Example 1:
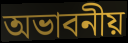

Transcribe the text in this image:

অভাবনীয়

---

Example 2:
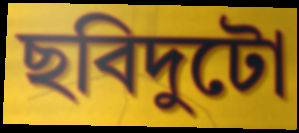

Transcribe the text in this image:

ছবিদুটো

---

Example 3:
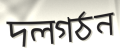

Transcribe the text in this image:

দলগঠন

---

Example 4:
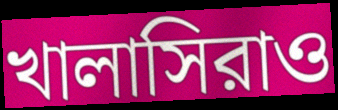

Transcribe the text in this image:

খালাসিরাও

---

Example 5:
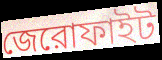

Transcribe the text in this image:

জেরোফাইট